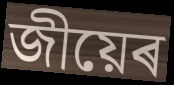
জীয়েৰ